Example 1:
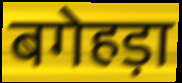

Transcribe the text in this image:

बगेहड़ा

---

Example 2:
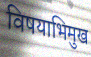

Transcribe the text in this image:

विषयाभिमुख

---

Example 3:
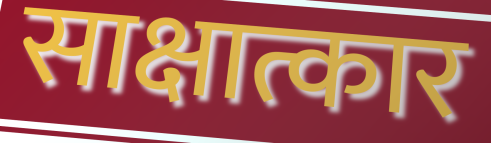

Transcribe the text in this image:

साक्षात्कार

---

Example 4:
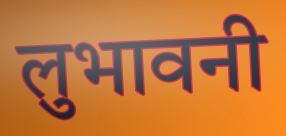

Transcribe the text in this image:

लुभावनी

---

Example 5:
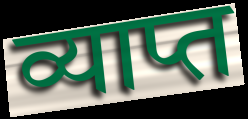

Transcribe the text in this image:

व्याप्त